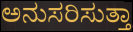
ಅನುಸರಿಸುತ್ತಾ